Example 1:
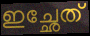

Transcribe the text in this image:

ഇച്ഛേത്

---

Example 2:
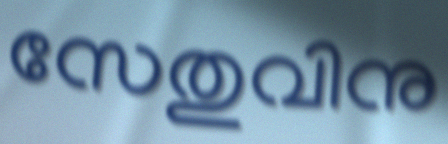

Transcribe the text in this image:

സേതുവിനു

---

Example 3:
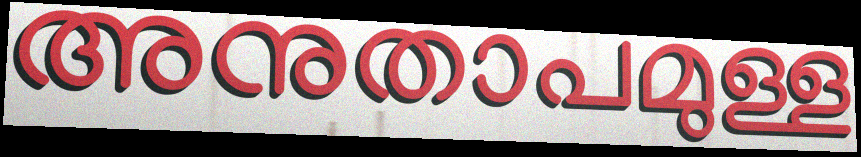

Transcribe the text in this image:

അനുതാപമുള്ള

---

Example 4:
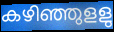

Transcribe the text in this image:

കഴിഞ്ഞുളളു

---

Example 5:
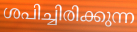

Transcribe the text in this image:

ശപിച്ചിരിക്കുന്ന